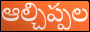
ఆల్చిప్పల